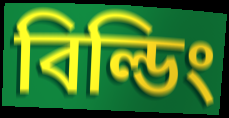
বিল্ডিং